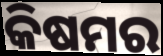
କିଷମର